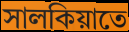
সালকিয়াতে